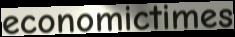
economictimes